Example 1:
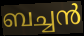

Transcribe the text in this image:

ബച്ചൻ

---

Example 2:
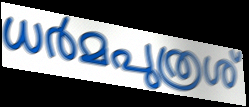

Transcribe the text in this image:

ധർമപുത്രശ്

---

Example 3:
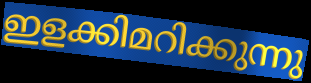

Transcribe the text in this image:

ഇളക്കിമറിക്കുന്നു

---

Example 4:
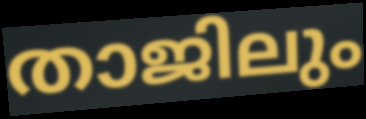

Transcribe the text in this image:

താജിലും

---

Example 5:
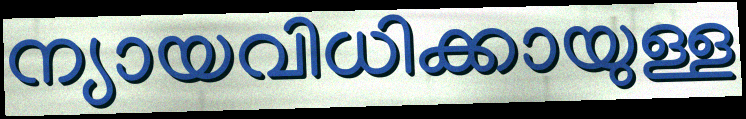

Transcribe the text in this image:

ന്യായവിധിക്കായുള്ള